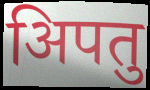
अिपतु